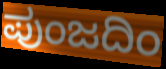
ಪುಂಜದಿಂ